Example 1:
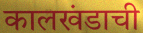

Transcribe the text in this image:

कालखंडाची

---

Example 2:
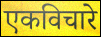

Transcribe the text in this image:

एकविचारे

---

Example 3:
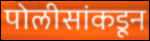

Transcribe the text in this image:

पोलीसांकडून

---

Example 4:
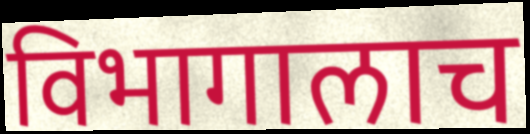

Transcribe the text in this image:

विभागालाच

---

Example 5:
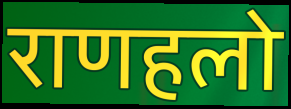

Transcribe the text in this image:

राणहलो